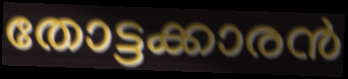
തോട്ടക്കാരൻ